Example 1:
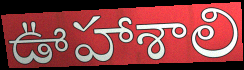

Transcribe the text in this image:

ఊహాశాలి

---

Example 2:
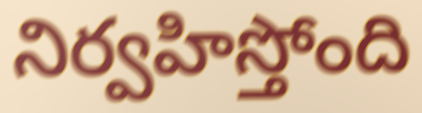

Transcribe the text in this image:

నిర్వహిస్తోంది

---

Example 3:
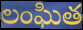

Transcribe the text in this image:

లంఘిత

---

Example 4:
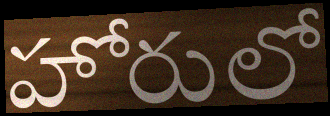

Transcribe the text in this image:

హోరులో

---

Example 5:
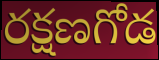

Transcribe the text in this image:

రక్షణగోడ